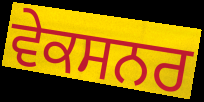
ਵੇਕਸਨਰ